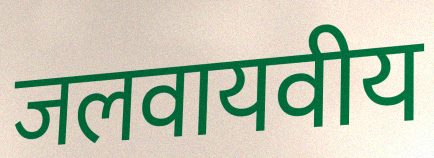
जलवायवीय